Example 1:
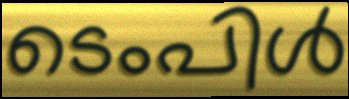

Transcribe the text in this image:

ടെംപിൾ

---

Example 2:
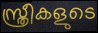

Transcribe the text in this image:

സ്ത്രീകളുടെ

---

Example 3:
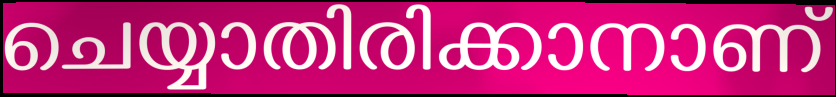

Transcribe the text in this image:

ചെയ്യാതിരിക്കാനാണ്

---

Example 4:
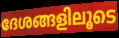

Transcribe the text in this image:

ദേശങ്ങളിലൂടെ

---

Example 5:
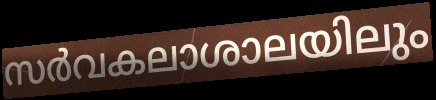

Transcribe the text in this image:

സർവകലാശാലയിലും